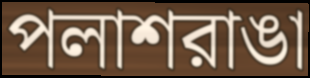
পলাশরাঙা